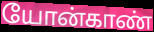
யோன்காண்